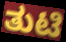
ತುಟಿ